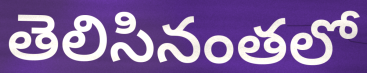
తెలిసినంతలో